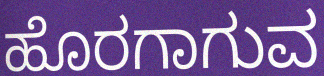
ಹೊರಗಾಗುವ